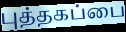
புத்தகப்பை